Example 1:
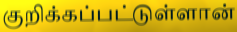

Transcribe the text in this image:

குறிக்கப்பட்டுள்ளான்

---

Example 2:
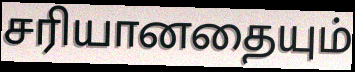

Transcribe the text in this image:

சரியானதையும்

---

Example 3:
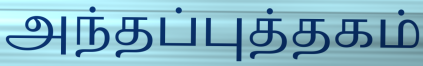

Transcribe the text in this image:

அந்தப்புத்தகம்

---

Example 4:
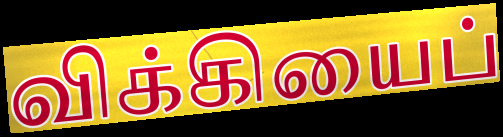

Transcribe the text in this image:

விக்கியைப்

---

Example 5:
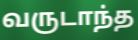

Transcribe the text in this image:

வருடாந்த